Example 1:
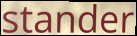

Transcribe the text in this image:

stander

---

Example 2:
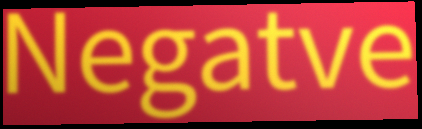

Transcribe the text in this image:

Negatve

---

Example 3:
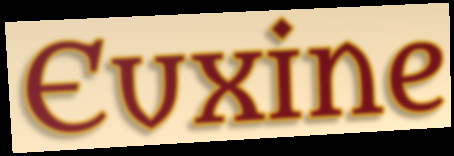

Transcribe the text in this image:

Euxine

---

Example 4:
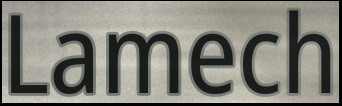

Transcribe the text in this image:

Lamech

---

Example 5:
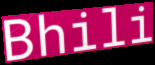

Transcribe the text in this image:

Bhili